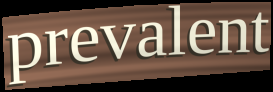
prevalent